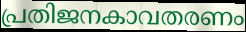
പ്രതിജനകാവതരണം